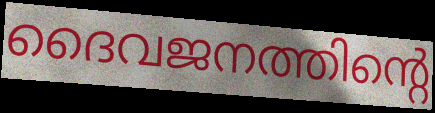
ദൈവജനത്തിന്റെ